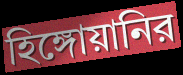
হিঙ্গোয়ানির